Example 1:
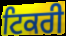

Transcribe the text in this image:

ਟਿਕਰੀ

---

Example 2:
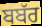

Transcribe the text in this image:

ਬਬੱਰ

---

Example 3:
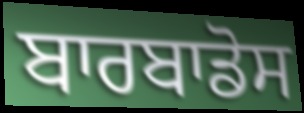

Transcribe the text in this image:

ਬਾਰਬਾਡੋਸ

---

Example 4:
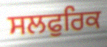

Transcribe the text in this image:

ਸਲਫੁਰਿਕ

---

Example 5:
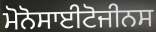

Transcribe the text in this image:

ਮੋਨੋਸਾਈਟੋਜੀਨਸ